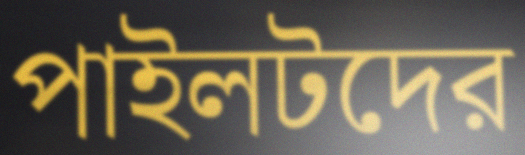
পাইলটদের